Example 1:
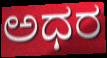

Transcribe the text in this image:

ಅಧರ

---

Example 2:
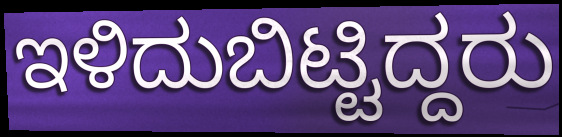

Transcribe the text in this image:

ಇಳಿದುಬಿಟ್ಟಿದ್ದರು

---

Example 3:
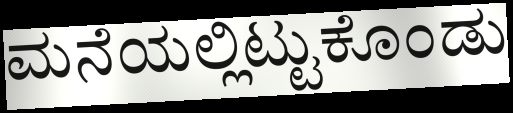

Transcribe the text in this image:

ಮನೆಯಲ್ಲಿಟ್ಟುಕೊಂಡು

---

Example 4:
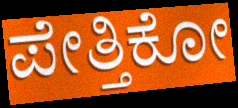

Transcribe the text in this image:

ಪೇತ್ತಿಕೋ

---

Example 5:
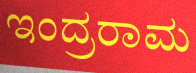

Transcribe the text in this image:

ಇಂದ್ರರಾಮ